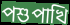
পশুপাখি